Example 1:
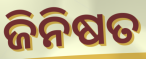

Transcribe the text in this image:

ଜିନିଷତ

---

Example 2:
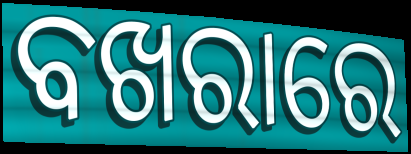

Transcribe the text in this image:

ବଖରାରେ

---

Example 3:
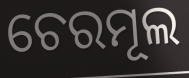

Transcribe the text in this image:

ଚେରମୂଲ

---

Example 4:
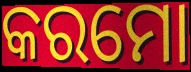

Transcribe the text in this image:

କରମୋ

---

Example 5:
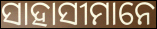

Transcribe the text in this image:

ସାହାସୀମାନେ